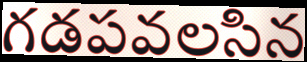
గడపవలసిన